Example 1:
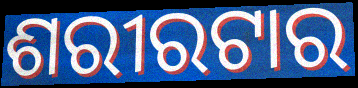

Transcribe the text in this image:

ଶରୀରଟାର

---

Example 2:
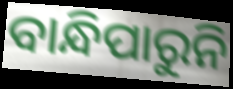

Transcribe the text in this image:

ବାନ୍ଧିପାରୁନି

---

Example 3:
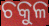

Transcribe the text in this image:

ଚକୁଳ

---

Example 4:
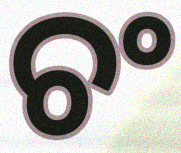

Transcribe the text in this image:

ଚଂ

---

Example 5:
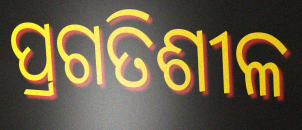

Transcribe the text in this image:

ପ୍ରଗତିଶୀଳ